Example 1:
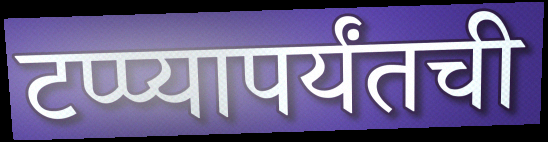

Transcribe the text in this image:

टप्प्यापर्यंतची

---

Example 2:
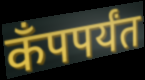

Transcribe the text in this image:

कँपपर्यंत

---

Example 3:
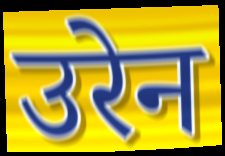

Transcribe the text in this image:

उरेन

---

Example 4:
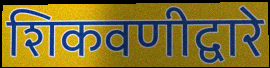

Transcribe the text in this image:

शिकवणीद्वारे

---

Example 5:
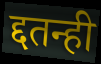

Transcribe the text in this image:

द्दतन्ही